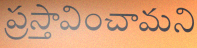
ప్రస్తావించామని